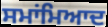
ਸਮਾਂਮਿਆਦ